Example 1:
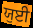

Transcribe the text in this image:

ਯੁਈ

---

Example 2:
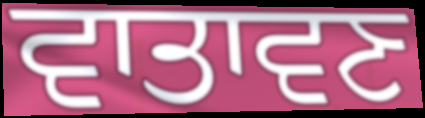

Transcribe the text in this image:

ਵਾਤਾਵਣ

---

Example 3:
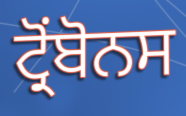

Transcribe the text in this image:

ਟ੍ਰੋਂਬੋਨਸ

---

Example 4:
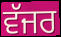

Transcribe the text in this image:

ਵੱਜਰ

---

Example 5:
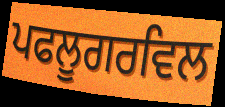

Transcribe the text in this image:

ਪਫਲੂਗਰਵਿਲ